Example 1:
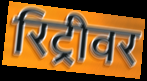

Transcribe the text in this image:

रिट्रीवर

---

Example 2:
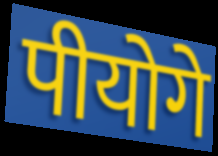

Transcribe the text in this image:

पीयोगे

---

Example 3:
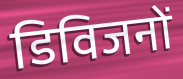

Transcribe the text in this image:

डिविजनों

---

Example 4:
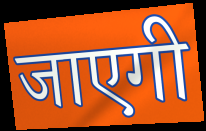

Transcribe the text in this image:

जाएगी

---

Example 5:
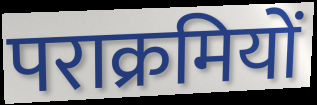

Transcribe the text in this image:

पराक्रमियों